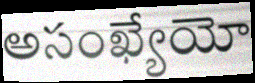
అసంఖ్యేయో